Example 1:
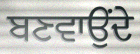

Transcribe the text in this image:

ਬਣਵਾਉਂਦੇ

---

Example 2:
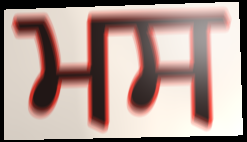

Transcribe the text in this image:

ਮਸ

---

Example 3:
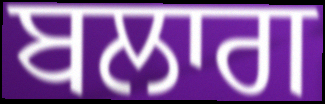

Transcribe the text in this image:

ਬਲਾਗ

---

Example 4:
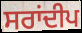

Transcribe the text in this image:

ਸਰਾਂਦੀਪ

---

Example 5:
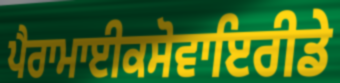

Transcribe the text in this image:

ਪੈਰਾਮਾਈਕਸੋਵਾਇਰੀਡੇ